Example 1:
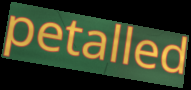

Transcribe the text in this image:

petalled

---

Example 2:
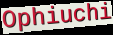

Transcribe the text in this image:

Ophiuchi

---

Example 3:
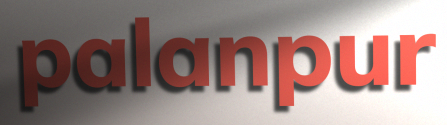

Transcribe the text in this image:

palanpur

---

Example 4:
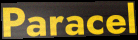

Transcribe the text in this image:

Paracel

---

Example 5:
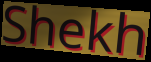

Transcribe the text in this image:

Shekh